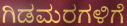
ಗಿಡಮರಗಳಿಗೆ